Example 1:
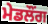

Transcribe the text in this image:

ਮੇਡਲੌਂਗ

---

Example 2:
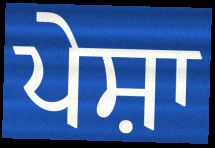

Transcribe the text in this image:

ਪੇਸ਼ਾ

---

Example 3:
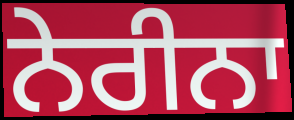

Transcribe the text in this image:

ਨੇਰੀਨਾ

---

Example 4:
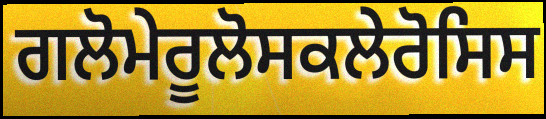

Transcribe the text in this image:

ਗਲੋਮੇਰੂਲੋਸਕਲੇਰੋਸਿਸ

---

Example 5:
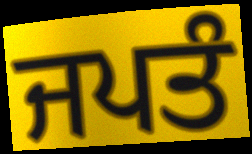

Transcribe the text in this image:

ਜਪਤੰ